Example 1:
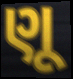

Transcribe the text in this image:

ણૂ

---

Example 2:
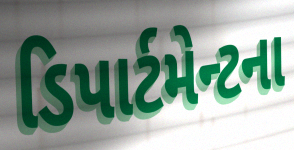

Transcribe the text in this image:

ડિપાર્ટમેન્ટના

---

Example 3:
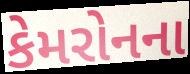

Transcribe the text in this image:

કેમરોનના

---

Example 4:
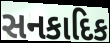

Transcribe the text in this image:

સનકાદિક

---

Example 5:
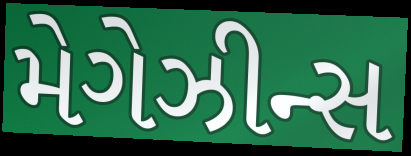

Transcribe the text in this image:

મેગેઝીન્સ